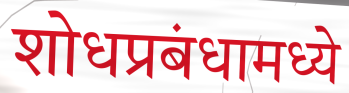
शोधप्रबंधामध्ये